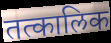
तत्कालिक